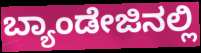
ಬ್ಯಾಂಡೇಜಿನಲ್ಲಿ